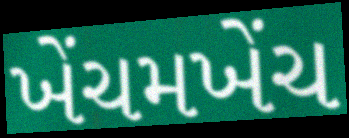
ખેંચમખેંચ